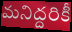
మనిద్దరికీ